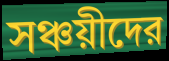
সঞ্চয়ীদের